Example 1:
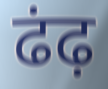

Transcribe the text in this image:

ढंढ़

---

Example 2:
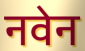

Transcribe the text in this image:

नवेन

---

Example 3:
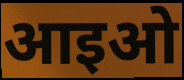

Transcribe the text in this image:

आइओ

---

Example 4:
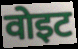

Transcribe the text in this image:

वोइट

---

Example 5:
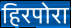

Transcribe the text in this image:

हिरपोरा